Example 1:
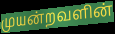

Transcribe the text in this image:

முயன்றவளின்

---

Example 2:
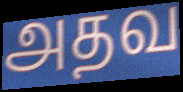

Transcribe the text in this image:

அதவ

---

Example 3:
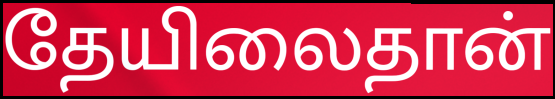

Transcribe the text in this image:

தேயிலைதான்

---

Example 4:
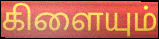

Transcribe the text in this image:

கிளையும்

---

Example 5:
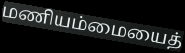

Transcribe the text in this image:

மணியம்மையைத்